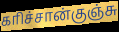
கரிச்சான்குஞ்சு